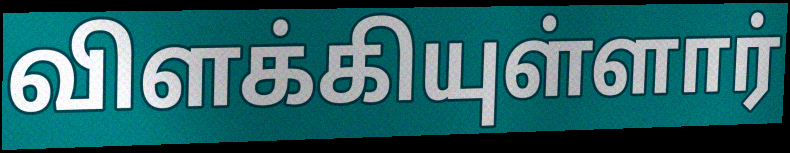
விளக்கியுள்ளார்